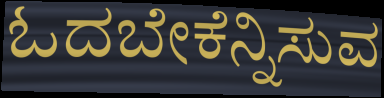
ಓದಬೇಕೆನ್ನಿಸುವ